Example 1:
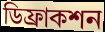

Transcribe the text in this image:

ডিফ্রাকশন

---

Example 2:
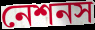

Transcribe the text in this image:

নেশনস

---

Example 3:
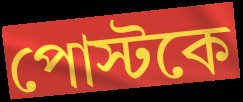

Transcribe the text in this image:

পোস্টকে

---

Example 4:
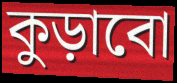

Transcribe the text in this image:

কুড়াবো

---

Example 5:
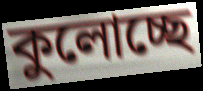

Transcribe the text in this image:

কুলোচ্ছে